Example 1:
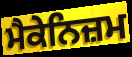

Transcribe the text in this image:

ਮੈਕੇਨਿਜ਼ਮ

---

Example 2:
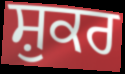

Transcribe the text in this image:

ਸ਼ੁਕਰ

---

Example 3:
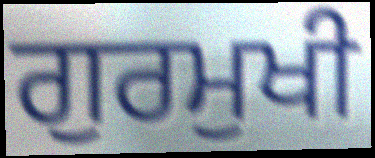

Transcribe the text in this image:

ਗੁਰਮੁਖੀ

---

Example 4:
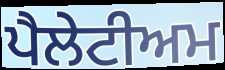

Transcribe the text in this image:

ਪੈਲੇਟੀਅਮ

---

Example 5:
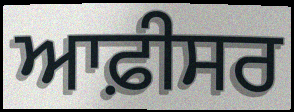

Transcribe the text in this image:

ਆਫ਼ੀਸਰ